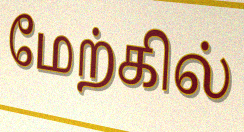
மேற்கில்